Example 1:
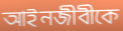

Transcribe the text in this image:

আইনজীবীকে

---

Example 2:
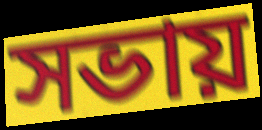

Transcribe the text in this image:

সভায়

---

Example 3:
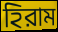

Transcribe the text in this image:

হিরাম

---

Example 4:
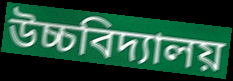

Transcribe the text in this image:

উচ্চবিদ্যালয়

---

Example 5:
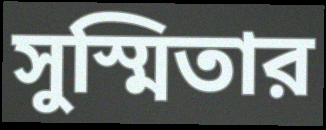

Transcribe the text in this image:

সুস্মিতার